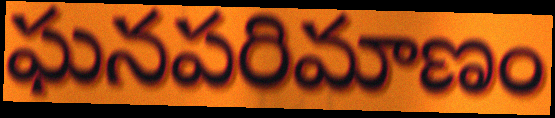
ఘనపరిమాణం